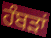
ਹੰਬੜਾਂ